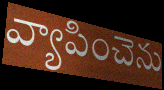
వ్యాపించెను